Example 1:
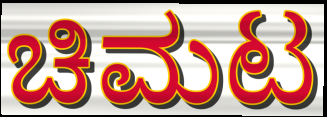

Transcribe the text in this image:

ಚಿಮಟ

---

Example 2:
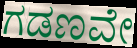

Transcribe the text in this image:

ಗಡಣವೇ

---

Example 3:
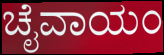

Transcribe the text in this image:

ಚೈವಾಯಂ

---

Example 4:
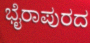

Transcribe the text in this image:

ಭೈರಾಪುರದ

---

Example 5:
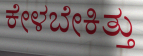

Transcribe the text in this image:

ಕೇಳಬೇಕಿತ್ತು